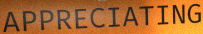
APPRECIATING